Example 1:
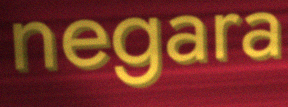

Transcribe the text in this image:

negara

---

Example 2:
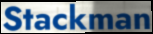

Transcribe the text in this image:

Stackman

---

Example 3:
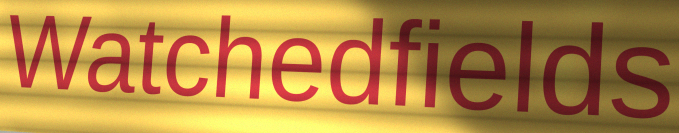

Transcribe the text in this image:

Watchedfields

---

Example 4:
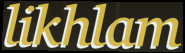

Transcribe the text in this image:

likhlam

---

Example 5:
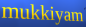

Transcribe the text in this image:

mukkiyam